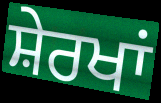
ਸ਼ੇਰਖਾਂ